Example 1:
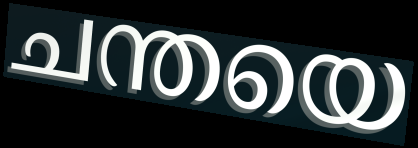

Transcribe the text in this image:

ചന്തയെ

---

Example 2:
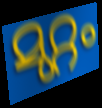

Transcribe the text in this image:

മുറ്റം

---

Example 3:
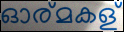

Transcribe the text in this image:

ഓര്മകള്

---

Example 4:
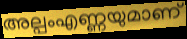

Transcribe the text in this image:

അല്പംഎണ്ണയുമാണ്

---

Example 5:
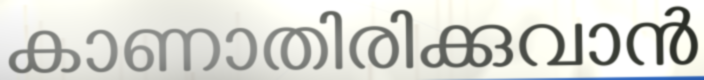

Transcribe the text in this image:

കാണാതിരിക്കുവാൻ